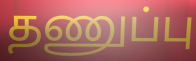
தணுப்பு